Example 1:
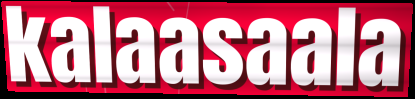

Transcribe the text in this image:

kalaasaala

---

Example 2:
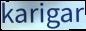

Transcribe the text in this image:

karigar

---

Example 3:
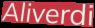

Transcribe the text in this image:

Aliverdi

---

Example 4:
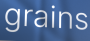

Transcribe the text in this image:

grains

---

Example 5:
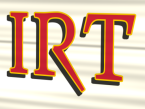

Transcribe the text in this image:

IRT